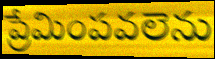
ప్రేమింపవలెను